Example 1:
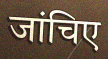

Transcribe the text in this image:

जांचिए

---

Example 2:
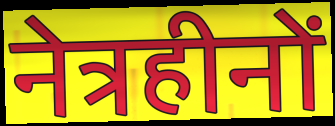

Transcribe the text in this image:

नेत्रहीनों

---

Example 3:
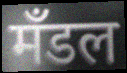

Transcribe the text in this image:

मँडल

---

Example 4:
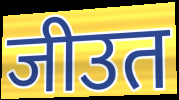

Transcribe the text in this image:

जीउत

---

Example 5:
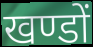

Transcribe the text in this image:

खण्डों